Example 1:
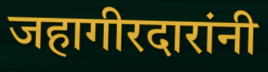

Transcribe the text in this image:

जहागीरदारांनी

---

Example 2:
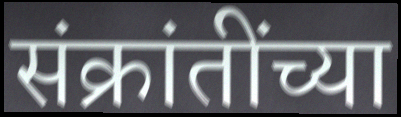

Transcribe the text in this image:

संक्रांतींच्या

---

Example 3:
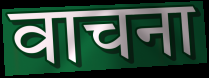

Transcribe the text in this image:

वाचना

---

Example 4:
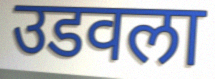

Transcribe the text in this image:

उडवला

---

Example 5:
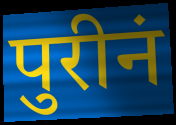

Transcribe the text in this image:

पुरीनं